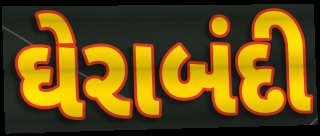
ઘેરાબંદી